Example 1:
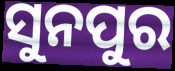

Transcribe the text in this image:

ସୁନପୁର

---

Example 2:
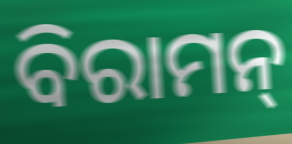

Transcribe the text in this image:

ବିରାମନ୍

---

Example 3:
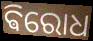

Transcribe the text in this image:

ଵିରୋଧ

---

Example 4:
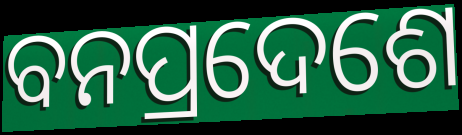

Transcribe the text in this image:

ବନପ୍ରଦେଶେ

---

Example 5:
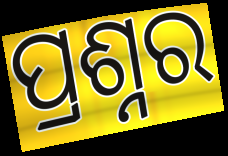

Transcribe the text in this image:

ପ୍ରଶ୍ନର